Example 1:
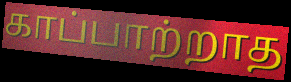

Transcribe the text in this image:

காப்பாற்றாத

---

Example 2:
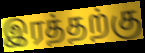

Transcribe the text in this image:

இரத்தற்கு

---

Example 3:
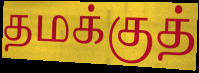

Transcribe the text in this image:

தமக்குத்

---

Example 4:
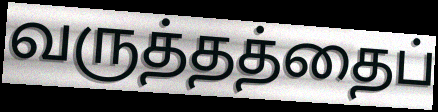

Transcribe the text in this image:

வருத்தத்தைப்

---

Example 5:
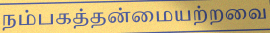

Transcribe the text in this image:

நம்பகத்தன்மையற்றவை